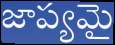
జాప్యమై